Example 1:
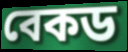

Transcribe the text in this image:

বেকড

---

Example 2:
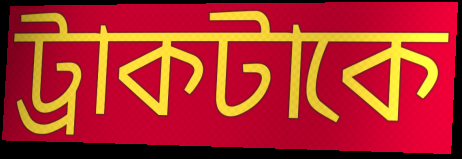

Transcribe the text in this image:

ট্রাকটাকে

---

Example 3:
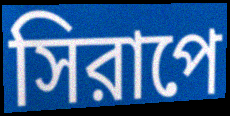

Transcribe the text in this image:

সিরাপে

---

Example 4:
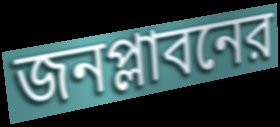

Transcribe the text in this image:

জনপ্লাবনের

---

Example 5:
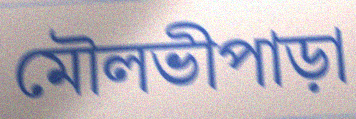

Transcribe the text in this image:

মৌলভীপাড়া